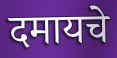
दमायचे